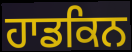
ਹਾਡਕਿਨ